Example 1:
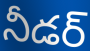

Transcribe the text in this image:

నీడర్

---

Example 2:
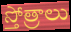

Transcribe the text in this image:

స్తోత్రాలు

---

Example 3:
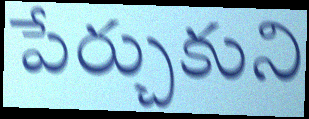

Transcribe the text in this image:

పేర్చుకుని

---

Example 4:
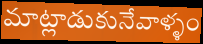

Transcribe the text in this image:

మాట్లాడుకునేవాళ్ళం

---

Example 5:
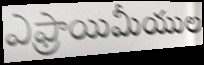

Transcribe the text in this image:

ఎఫ్రాయిమీయుల